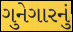
ગુનેગારનું